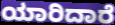
ಯಾರಿದಾರೆ